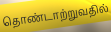
தொண்டாற்றுவதில்